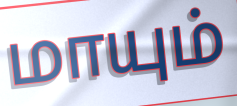
மாயும்